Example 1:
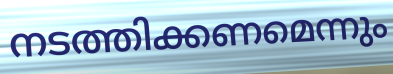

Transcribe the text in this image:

നടത്തിക്കണമെന്നും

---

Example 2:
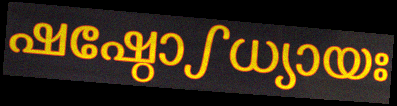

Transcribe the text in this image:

ഷഷ്ഠോഽധ്യായഃ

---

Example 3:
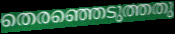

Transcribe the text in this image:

തെരഞ്ഞെടുത്തതു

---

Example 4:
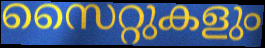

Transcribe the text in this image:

സൈറ്റുകളും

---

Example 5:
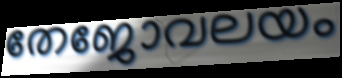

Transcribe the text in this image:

തേജോവലയം